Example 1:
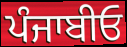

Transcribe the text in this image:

ਪੰਜਾਬੀਓ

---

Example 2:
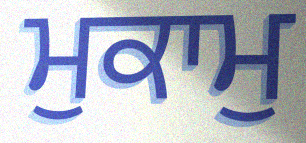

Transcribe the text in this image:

ਮੁਕਾਮੁ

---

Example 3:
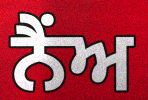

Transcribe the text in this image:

ਨੈਂਅ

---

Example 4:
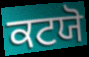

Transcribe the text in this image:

ਕਟਯੋ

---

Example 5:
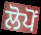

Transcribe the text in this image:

ਲੋਪੋਂ